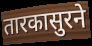
तारकासुरने